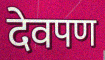
देवपण